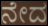
ನೇದ